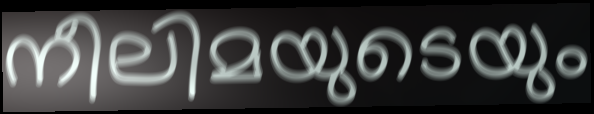
നീലിമയുടെയും